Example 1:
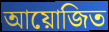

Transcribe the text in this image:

আয়োজিত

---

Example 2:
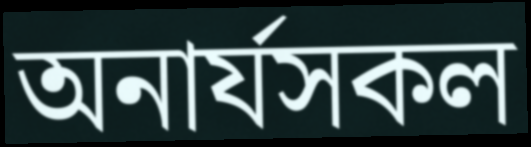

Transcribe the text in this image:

অনাৰ্যসকল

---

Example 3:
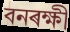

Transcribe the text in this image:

বনৰক্ষী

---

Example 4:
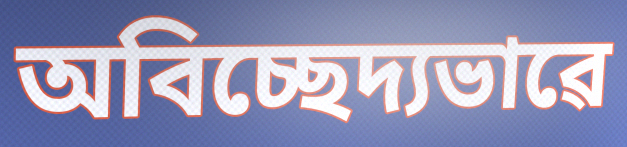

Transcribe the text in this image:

অবিচ্ছেদ্যভাৱে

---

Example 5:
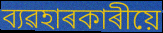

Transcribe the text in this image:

ব্যৱহাৰকাৰীয়ে